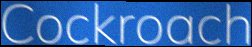
Cockroach